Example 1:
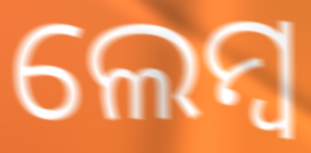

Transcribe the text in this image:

ଲେମ୍ବ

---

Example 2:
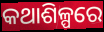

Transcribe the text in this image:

କଥାଶିଳ୍ପରେ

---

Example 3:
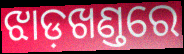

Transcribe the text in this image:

ଝାଡ଼ଖଣ୍ଡରେ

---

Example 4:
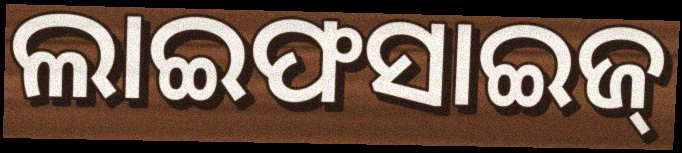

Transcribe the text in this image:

ଲାଇଫସାଇଜ୍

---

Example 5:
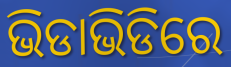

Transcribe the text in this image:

ଭିଡାଭିଡିରେ